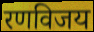
रणविजय